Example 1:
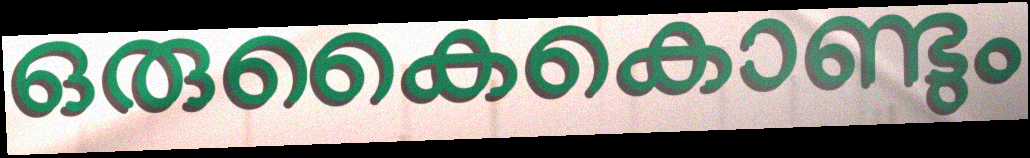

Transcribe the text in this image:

ഒരുകൈകൊണ്ടും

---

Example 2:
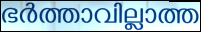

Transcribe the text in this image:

ഭർത്താവില്ലാത്ത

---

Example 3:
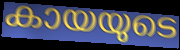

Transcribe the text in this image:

കായയുടെ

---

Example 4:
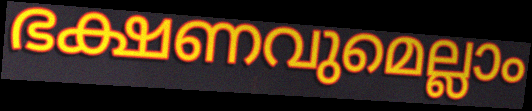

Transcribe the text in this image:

ഭക്ഷണവുമെല്ലാം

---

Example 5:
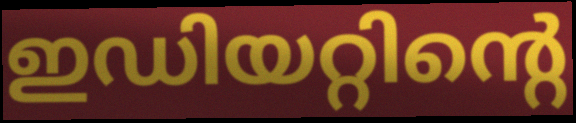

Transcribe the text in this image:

ഇഡിയറ്റിന്റെ